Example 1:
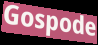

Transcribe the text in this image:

Gospode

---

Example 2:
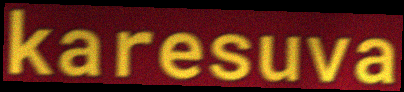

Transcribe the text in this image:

karesuva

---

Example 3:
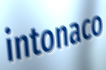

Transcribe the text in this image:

intonaco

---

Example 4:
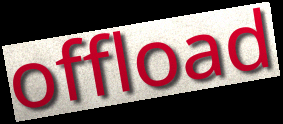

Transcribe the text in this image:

offload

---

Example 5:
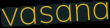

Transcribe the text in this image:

vasana